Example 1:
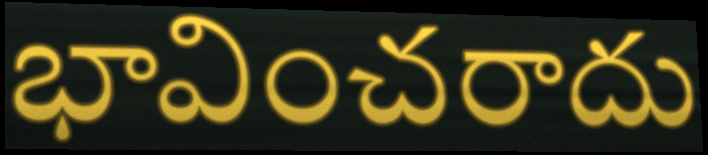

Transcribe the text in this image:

భావించరాదు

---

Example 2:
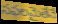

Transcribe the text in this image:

సఫలమైతేనే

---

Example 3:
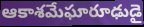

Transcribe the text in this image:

ఆకాశమేఘారూఢుడై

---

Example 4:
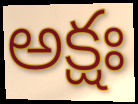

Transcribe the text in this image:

అక్షః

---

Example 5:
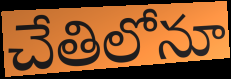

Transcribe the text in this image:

చేతిలోనూ